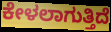
ಕೇಳಲಾಗುತ್ತಿದೆ